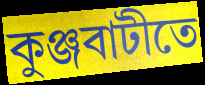
কুঞ্জবাটীতে